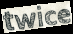
twice